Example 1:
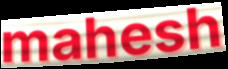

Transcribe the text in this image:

mahesh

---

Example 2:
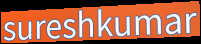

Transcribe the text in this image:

sureshkumar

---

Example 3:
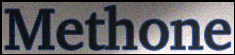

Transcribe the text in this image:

Methone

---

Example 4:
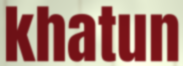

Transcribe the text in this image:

khatun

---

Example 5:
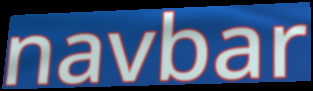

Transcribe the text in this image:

navbar